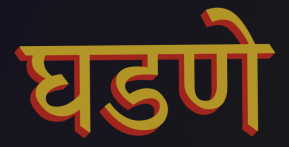
घडणे